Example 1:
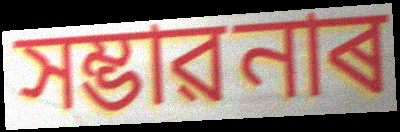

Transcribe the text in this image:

সম্ভাৱনাৰ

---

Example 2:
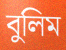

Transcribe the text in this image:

বুলিম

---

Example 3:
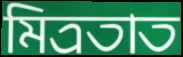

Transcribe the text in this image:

মিত্ৰতাত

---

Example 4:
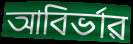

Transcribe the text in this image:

আবিৰ্ভাৱ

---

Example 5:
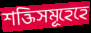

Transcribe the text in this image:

শক্তিসমূহেহে